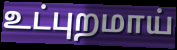
உட்புறமாய்